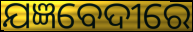
ଯଜ୍ଞବେଦୀରେ